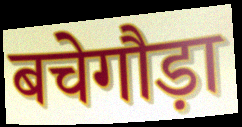
बचेगौड़ा